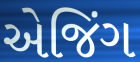
એજિંગ